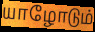
யாழோடும்